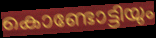
കൊണ്ടോട്ടിയും